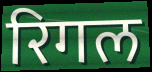
रिगल